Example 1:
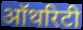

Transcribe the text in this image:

ऑथरिटी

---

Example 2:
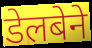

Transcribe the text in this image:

डेलबेने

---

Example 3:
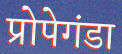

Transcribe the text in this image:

प्रोपेगंडा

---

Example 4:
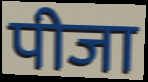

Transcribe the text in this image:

पीजा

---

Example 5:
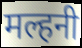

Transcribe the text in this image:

मल्हनी